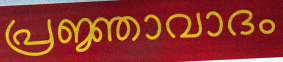
പ്രജ്ഞാവാദം